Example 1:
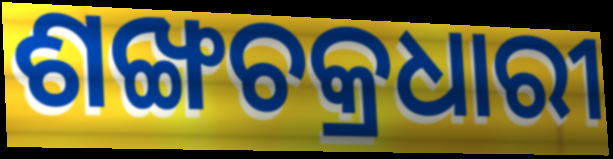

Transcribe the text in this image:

ଶଙ୍ଖଚକ୍ରଧାରୀ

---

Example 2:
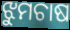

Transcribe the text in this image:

ଝୁମଚାଷ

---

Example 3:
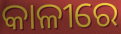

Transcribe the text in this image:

କାଳୀରେ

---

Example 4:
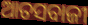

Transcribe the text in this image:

ଆତସବାଜୀ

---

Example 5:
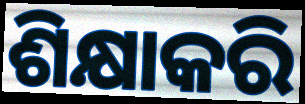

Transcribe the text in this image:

ଶିକ୍ଷାକରି